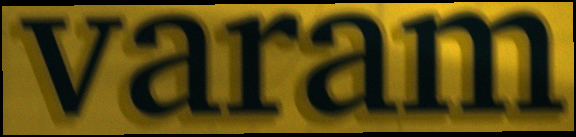
varam